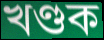
খণ্ডক